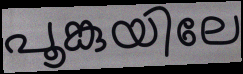
പൂങ്കുയിലേ